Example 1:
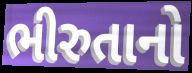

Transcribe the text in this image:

ભીરુતાનો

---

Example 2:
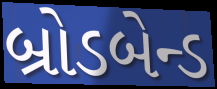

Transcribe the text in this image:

બ્રોડબેન્ડ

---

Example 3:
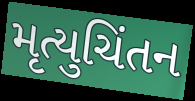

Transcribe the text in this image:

મૃત્યુચિંતન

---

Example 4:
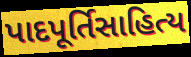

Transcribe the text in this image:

પાદપૂર્તિસાહિત્ય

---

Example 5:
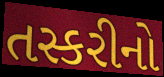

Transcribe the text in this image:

તસ્કરીનો